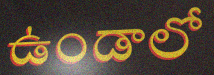
ఉండాలో